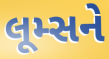
લૂમ્સને